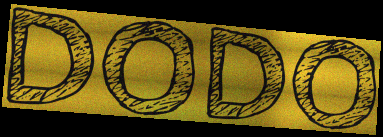
DODO